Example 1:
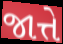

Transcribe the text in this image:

જાત્તે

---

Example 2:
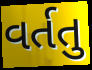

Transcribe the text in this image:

વર્તતુ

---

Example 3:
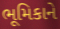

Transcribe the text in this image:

ભૂમિકાને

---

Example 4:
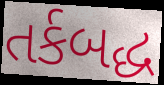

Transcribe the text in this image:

તર્કબદ્ધ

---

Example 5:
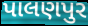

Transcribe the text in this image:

પાલણપુર